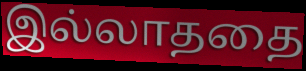
இல்லாததை